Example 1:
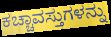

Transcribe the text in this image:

ಕಚ್ಚಾವಸ್ತುಗಳನ್ನು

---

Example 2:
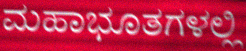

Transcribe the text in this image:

ಮಹಾಭೂತಗಳಲ್ಲಿ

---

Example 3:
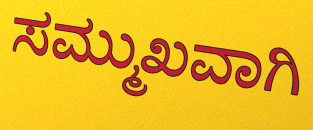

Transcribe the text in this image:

ಸಮ್ಮುಖವಾಗಿ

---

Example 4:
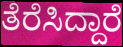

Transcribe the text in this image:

ತೆರೆಸಿದ್ದಾರೆ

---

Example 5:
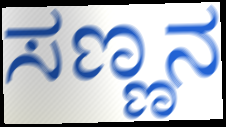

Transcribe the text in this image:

ಸಣ್ಣನ